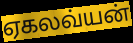
ஏகலவ்யன்